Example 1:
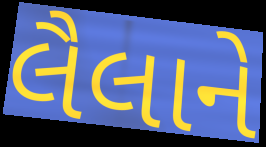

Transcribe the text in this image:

લૈલાને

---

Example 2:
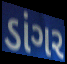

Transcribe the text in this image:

ડાંગર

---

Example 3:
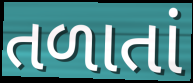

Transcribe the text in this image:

તળાતાં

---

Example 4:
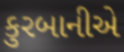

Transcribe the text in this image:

કુરબાનીએ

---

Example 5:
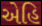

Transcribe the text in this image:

એહિ